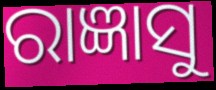
ରାଜ୍ଞାସୁ